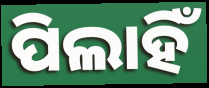
ପିଲାହିଁ